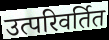
उत्परिवर्तित